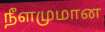
நீளமுமான